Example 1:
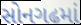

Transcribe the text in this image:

સોનગઢમાં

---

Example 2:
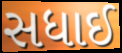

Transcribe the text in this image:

સધાઈ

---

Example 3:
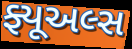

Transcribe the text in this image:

ફ્યૂઅલ્સ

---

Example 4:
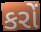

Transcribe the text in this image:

કરોં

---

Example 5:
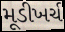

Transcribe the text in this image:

મૂડીખર્ચ